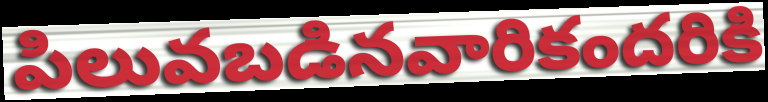
పిలువబడినవారికందరికి